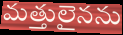
మత్తులైనను